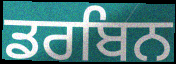
ਡਰਬਿਨ